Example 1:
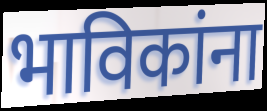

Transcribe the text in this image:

भाविकांना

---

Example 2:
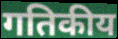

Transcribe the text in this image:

गतिकीय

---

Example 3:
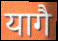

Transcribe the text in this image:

यागै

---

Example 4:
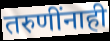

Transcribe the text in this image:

तरुणींनाही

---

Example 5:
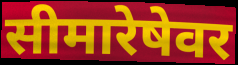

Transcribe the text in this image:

सीमारेषेवर